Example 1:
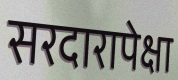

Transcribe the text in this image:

सरदारापेक्षा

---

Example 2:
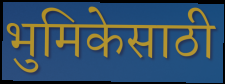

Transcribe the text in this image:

भुमिकेसाठी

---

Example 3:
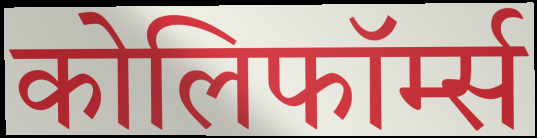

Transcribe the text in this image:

कोलिफॉर्म्स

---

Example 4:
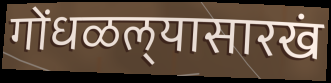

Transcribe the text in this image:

गोंधळल्यासारखं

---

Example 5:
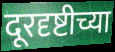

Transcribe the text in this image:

दूरदृष्टीच्या